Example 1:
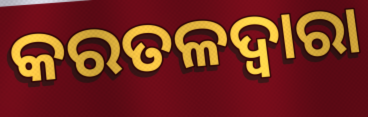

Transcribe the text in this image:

କରତଳଦ୍ୱାରା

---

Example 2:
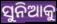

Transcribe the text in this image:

ସୁନିଆକୁ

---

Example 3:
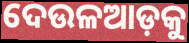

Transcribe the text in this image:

ଦେଉଳଆଡ଼କୁ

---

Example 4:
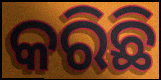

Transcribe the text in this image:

କରିଛି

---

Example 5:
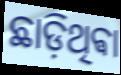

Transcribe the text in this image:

ଛାଡ଼ିଥିଵା